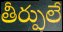
తీర్పులే